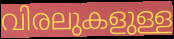
വിരലുകളുള്ള